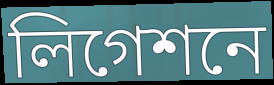
লিগেশনে